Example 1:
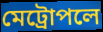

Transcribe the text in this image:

মেট্রোপলে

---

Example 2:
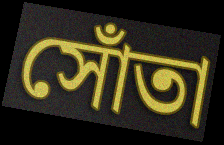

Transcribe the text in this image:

সোঁতা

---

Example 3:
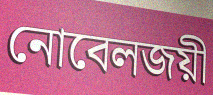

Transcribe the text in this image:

নোবেলজয়ী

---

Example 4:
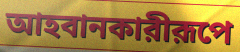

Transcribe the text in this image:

আহবানকারীরূপে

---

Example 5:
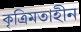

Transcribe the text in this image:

কৃত্রিমতাহীন